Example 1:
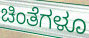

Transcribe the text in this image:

ಚಿಂತೆಗಳೂ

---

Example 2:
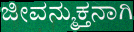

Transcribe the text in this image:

ಜೀವನ್ಮುಕ್ತನಾಗಿ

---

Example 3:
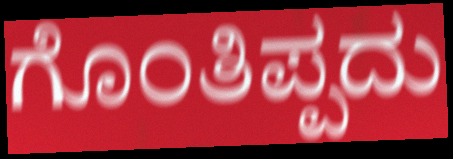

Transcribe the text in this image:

ಗೊಂತಿಪ್ಪದು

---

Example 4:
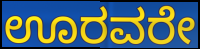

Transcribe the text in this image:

ಊರವರೇ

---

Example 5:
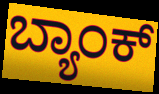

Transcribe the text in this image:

ಬ್ಯಾಂಕ್